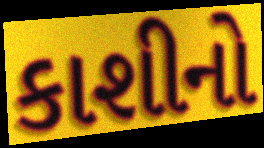
કાશીનો